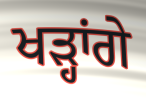
ਖੜ੍ਹਾਂਗੇ